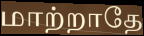
மாற்றாதே